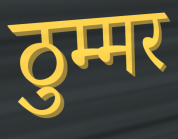
ठुम्मर